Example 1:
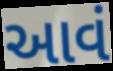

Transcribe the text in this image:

આવં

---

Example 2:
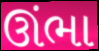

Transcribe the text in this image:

ઊંભા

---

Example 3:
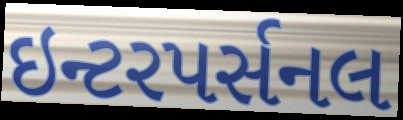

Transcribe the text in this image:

ઇન્ટરપર્સનલ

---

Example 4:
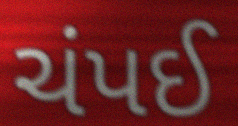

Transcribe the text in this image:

ચંપઈ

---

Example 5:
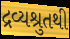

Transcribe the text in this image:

દ્રવ્યશ્રુતથી